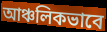
আঞ্চলিকভাবে